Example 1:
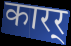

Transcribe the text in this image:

कारर्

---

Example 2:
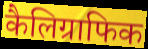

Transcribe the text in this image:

कैलिग्राफिक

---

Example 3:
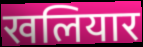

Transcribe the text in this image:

खलियार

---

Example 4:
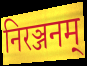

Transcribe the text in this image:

निरञ्जनम्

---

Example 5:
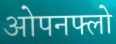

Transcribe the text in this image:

ओपनफ्लो